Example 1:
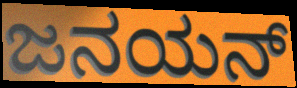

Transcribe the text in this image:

ಜನಯನ್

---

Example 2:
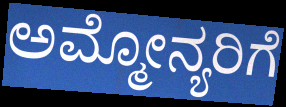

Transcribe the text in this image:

ಅಮ್ಮೋನ್ಯರಿಗೆ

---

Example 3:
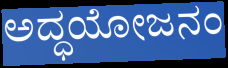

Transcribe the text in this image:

ಅದ್ಧಯೋಜನಂ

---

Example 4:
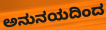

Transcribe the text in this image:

ಅನುನಯದಿಂದ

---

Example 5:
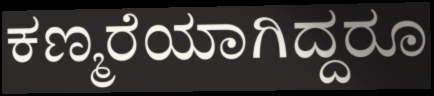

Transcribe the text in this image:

ಕಣ್ಮರೆಯಾಗಿದ್ದರೂ